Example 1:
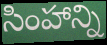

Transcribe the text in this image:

సింహాన్ని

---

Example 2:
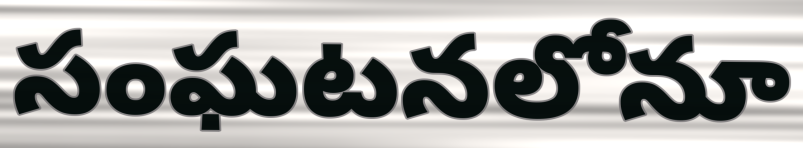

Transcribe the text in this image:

సంఘటనలోనూ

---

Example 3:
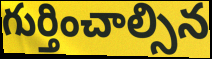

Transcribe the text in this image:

గుర్తించాల్సిన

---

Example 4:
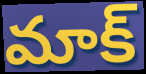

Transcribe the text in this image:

మాక్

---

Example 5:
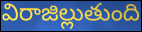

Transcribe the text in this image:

విరాజిల్లుతుంది